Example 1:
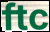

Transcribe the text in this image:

ftc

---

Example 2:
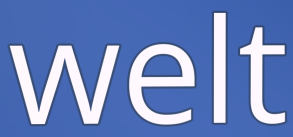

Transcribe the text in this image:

welt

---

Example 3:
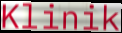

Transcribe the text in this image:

Klinik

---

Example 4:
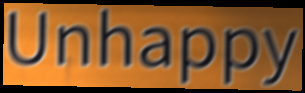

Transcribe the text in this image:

Unhappy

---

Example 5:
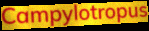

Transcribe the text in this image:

Campylotropus